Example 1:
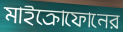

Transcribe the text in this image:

মাইক্রোফোনের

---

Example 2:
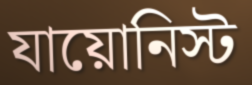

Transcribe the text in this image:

যায়োনিস্ট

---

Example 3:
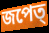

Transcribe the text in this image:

জপেত্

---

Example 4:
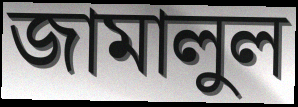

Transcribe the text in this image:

জামালুল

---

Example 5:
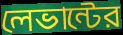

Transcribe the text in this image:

লেভান্টের